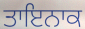
ਤਾਇਨਾਕ